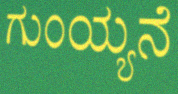
ಗುಂಯ್ಯನೆ